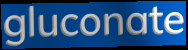
gluconate